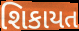
શિકાયત